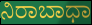
ನಿರಾಬಾಧಾ